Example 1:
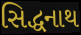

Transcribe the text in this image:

સિદ્ધનાથ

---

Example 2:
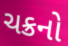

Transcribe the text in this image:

ચક્રનો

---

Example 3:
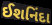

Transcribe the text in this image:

ઈશનિંદા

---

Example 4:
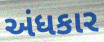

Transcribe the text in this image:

અંધકાર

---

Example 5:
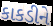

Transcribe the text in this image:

કાકડીને